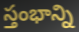
స్తంభాన్ని